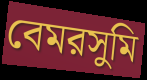
বেমরসুমি